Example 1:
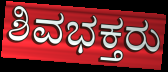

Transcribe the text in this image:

ಶಿವಭಕ್ತರು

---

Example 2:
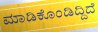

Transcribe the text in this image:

ಮಾಡಿಕೊಂಡಿದ್ದಿದೆ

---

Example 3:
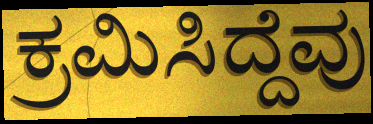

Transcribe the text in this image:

ಕ್ರಮಿಸಿದ್ದೆವು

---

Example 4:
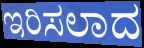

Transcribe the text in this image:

ಇರಿಸಲಾದ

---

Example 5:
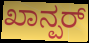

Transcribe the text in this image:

ಖಾನ್ಪರ್